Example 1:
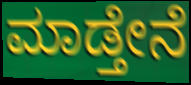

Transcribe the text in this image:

ಮಾಡ್ತೇನೆ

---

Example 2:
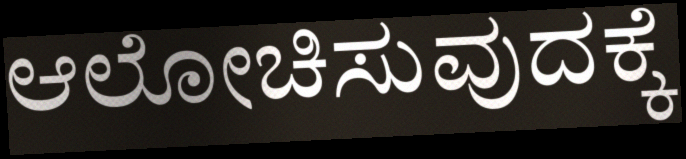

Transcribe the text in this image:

ಆಲೋಚಿಸುವುದಕ್ಕೆ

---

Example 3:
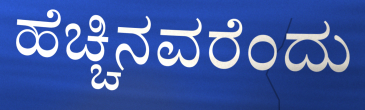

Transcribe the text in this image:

ಹೆಚ್ಚಿನವರೆಂದು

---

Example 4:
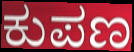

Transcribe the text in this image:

ಕುಪಣ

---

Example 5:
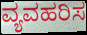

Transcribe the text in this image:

ವ್ಯವಹರಿಸ